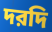
দরদি